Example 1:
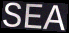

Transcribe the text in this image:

SEA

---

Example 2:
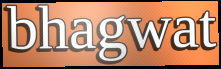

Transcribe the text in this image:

bhagwat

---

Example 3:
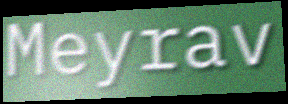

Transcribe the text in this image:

Meyrav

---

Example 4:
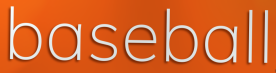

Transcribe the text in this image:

baseball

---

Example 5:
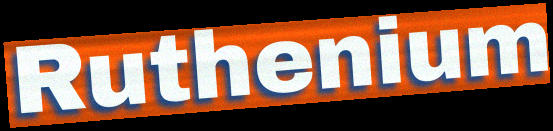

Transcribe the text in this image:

Ruthenium